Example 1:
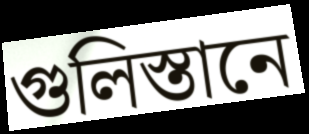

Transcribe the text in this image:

গুলিস্তানে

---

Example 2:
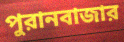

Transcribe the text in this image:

পুরানবাজার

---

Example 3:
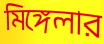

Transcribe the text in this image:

মিঙ্গেলার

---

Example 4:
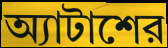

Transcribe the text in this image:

অ্যাটাশের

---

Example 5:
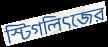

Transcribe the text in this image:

স্টিগলিৎজের